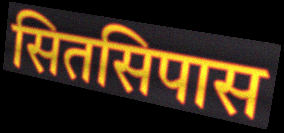
सितसिपास